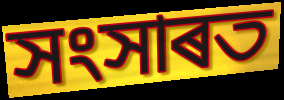
সংসাৰত